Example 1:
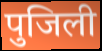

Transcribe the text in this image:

पुजिली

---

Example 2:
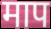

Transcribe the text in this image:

माप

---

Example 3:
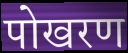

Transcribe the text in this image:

पोखरण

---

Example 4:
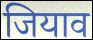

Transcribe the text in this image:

जियाव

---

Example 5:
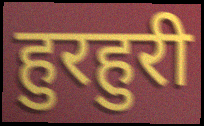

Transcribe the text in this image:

हुरहुरी